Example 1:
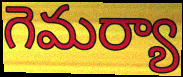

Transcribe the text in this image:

గెమర్యా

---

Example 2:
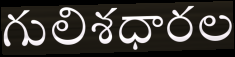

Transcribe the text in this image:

గులిశధారల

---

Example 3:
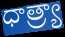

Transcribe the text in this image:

ధాత్ర్యా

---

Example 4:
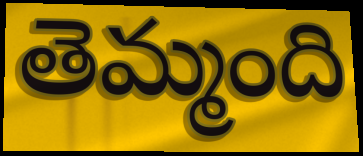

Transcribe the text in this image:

తెమ్మంది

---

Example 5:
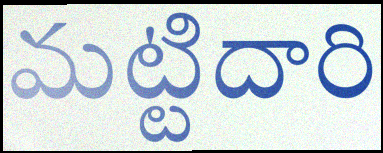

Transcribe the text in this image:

మట్టిదారి